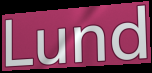
Lund